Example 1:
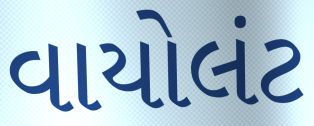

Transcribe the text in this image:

વાયોલંટ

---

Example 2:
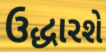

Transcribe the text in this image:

ઉદ્ધારશે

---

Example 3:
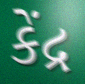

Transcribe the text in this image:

કેંદ્ર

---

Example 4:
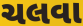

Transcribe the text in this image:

ચલવા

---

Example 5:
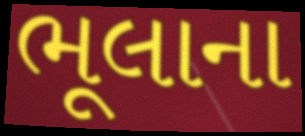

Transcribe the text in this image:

ભૂલાના